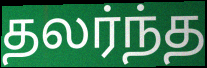
தலர்ந்த